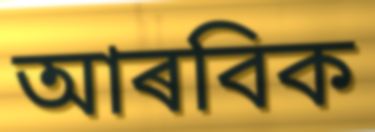
আৰবিক